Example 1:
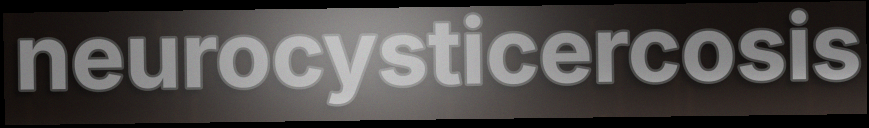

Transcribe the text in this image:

neurocysticercosis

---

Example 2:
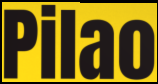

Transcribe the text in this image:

Pilao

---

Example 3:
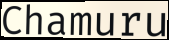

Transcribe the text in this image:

Chamuru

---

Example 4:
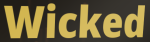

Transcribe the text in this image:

Wicked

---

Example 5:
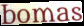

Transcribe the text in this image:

bomas